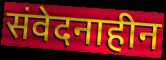
संवेदनाहीन